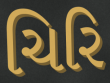
ચિરિ